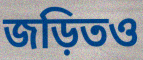
জড়িতও